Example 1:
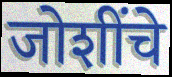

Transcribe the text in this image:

जोशींचे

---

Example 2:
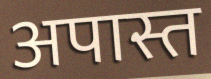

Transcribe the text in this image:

अपास्त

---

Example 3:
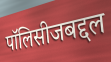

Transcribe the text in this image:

पॉलिसीजबद्दल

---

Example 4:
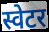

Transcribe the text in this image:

स्वेटर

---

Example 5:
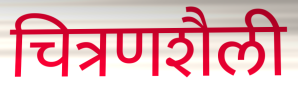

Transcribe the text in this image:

चित्रणशैली